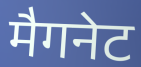
मैगनेट